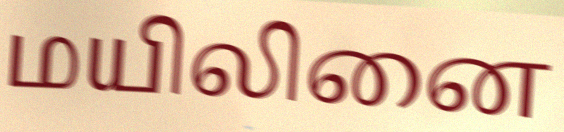
மயிலினை